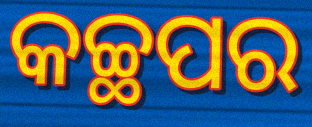
କଚ୍ଛପର